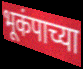
भूकंपाच्या